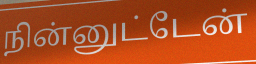
நின்னுட்டேன்